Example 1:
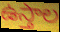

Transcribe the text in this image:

ఉస్తాల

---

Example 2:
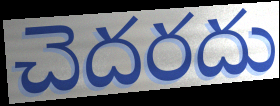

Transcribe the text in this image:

చెదరదు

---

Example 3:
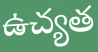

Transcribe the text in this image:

ఉచ్యత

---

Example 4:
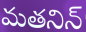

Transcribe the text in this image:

మతనిన్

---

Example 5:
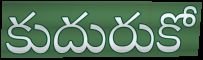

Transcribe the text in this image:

కుదురుకో